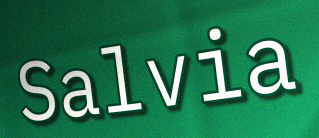
Salvia